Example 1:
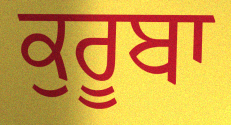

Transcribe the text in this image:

ਕੁਰੂਬਾ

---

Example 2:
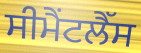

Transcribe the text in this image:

ਸੀਮੈਂਟਲੈੱਸ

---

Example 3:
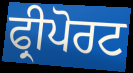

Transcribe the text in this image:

ਫ੍ਰੀਪੋਰਟ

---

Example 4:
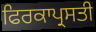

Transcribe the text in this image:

ਫਿਰਕਾਪ੍ਰਸਤੀ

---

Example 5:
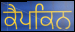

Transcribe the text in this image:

ਕੈਪਕਿਨ